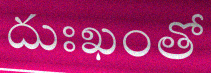
దుఃఖంతో